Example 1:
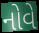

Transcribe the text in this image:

નોવે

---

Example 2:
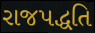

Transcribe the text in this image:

રાજપદ્ધતિ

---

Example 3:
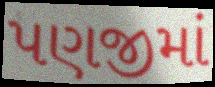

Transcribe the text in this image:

પણજીમાં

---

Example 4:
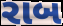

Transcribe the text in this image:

રાબ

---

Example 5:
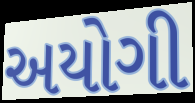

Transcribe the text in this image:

અયોગી